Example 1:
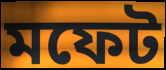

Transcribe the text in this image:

মফেট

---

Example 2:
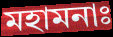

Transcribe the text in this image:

মহামনাঃ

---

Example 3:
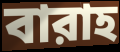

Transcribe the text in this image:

বারাহ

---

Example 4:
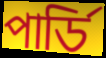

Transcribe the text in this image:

পার্ডি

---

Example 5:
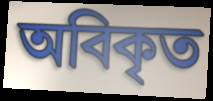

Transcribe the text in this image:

অবিকৃত